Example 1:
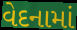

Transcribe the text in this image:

વેદનામાં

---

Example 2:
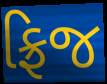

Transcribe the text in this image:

ફ્રિજ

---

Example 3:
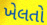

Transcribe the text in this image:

ખેલતો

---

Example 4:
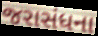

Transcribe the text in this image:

જરાસંધના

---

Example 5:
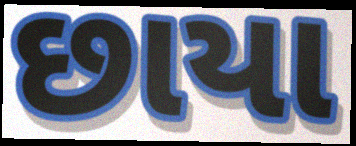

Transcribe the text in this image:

છાયા